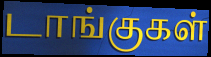
டாங்குகள்